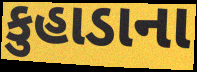
કુહાડાના